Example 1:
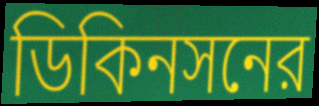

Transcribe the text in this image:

ডিকিনসনের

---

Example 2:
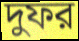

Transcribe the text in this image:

দুফর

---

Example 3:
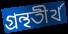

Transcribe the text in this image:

গ্রন্থতীর্থ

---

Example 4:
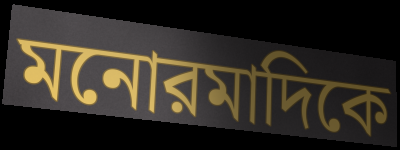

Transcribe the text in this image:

মনোরমাদিকে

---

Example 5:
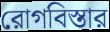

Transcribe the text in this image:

রোগবিস্তার